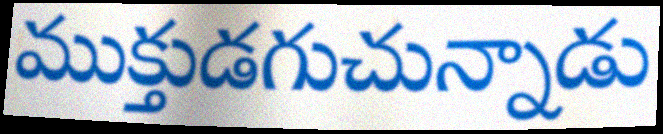
ముక్తుడగుచున్నాడు